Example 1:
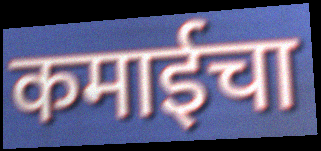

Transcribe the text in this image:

कमाईचा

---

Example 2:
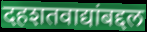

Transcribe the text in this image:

दहशतवाद्यांबद्दल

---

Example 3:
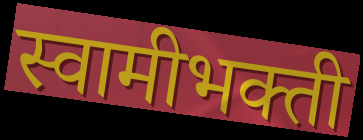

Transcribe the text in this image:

स्वामीभक्ती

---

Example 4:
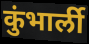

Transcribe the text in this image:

कुंभार्ली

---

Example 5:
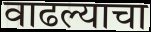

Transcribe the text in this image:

वाढल्याचा